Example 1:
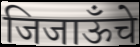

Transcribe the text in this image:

जिजाऊँचे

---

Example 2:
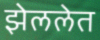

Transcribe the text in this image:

झेललेत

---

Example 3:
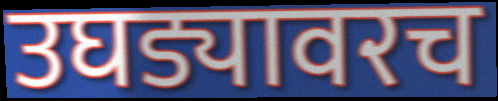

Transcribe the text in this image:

उघड्यावरच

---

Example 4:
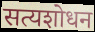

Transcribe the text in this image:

सत्यशोधन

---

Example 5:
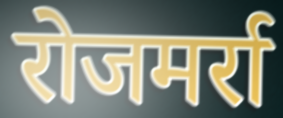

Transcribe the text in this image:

रोजमर्रा